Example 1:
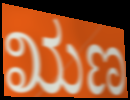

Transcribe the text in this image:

ಋಣ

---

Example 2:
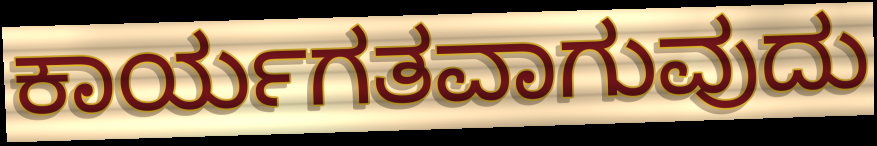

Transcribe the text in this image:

ಕಾರ್ಯಗತವಾಗುವುದು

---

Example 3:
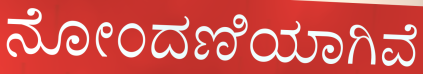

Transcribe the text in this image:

ನೋಂದಣಿಯಾಗಿವೆ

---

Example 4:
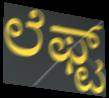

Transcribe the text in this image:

ಲೆಫ್ಟ್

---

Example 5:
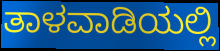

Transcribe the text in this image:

ತಾಳವಾಡಿಯಲ್ಲಿ